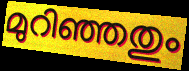
മുറിഞ്ഞതും